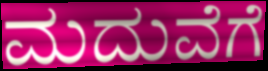
ಮದುವೆಗೆ